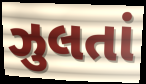
ઝુલતાં